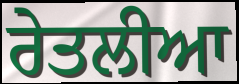
ਰੇਤਲੀਆ